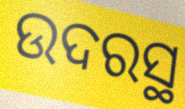
ଉଦରସ୍ଥ